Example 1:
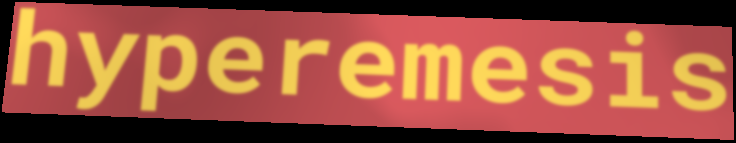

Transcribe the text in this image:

hyperemesis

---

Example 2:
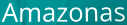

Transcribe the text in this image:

Amazonas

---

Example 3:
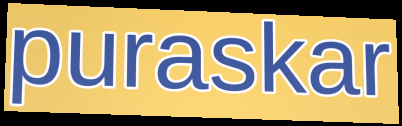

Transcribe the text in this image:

puraskar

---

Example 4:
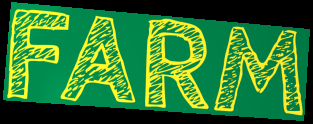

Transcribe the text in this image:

FARM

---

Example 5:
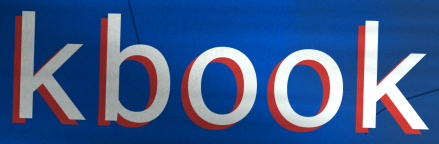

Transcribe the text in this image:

kbook